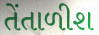
તેંતાળીશ